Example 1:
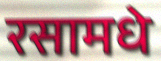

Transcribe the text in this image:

रसामधे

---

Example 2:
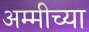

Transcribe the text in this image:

अम्मीच्या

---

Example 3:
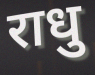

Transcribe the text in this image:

राधु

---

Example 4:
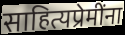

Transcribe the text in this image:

साहित्यप्रेमींना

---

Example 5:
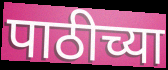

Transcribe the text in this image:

पाठीच्या